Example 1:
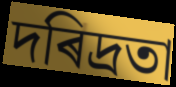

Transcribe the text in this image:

দৰিদ্ৰতা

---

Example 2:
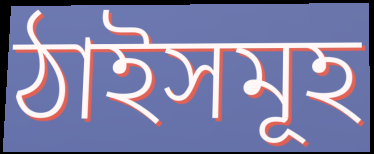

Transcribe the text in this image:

ঠাইসমূহ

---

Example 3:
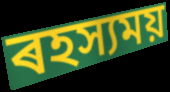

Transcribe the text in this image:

ৰহস্যময়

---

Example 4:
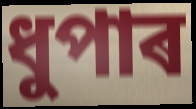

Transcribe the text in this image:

ধুপাৰ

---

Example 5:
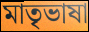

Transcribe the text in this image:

মাতৃভাষা